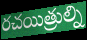
రచయిత్రుల్ని